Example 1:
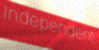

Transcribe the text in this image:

Independent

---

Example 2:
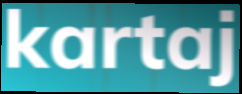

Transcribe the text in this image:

kartaj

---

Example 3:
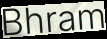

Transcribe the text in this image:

Bhram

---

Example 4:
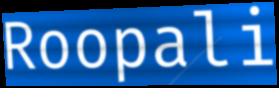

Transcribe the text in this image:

Roopali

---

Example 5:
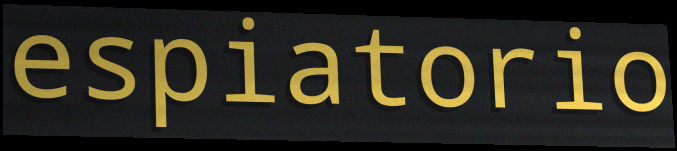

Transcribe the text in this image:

espiatorio